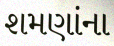
શમણાંના